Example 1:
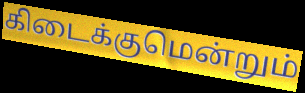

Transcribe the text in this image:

கிடைக்குமென்றும்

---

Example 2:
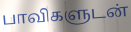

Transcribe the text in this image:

பாவிகளுடன்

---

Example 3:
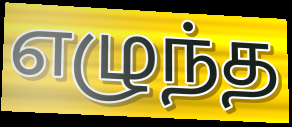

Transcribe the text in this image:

எழுந்த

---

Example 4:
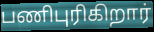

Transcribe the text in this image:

பணிபுரிகிறார்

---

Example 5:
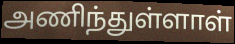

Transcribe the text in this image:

அணிந்துள்ளாள்